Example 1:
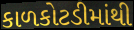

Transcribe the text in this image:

કાળકોટડીમાંથી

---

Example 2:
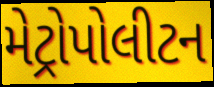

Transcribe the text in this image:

મેટ્રોપોલીટન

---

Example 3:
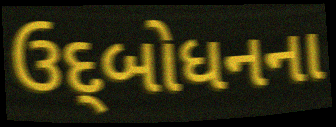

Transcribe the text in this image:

ઉદ્‌બોધનના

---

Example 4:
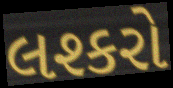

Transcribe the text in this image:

લશ્કરો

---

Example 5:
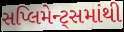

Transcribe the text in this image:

સપ્લિમેન્ટ્સમાંથી